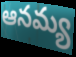
ఆనమ్య